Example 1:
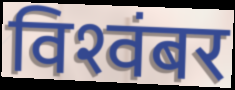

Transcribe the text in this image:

विश्वंबर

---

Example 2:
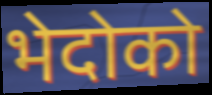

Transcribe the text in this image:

भेदोको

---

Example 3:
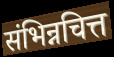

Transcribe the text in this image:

संभिन्नचित्त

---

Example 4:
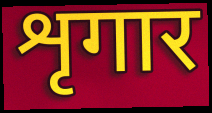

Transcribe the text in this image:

शृगार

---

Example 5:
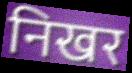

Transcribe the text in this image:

निखर